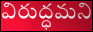
విరుద్ధమని